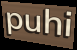
puhi